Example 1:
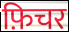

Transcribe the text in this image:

फ़िचर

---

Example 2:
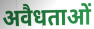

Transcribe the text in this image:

अवैधताओं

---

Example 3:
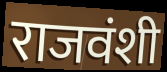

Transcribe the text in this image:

राजवंशी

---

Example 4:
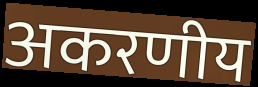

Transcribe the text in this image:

अकरणीय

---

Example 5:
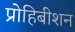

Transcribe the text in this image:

प्रोहिबीशन